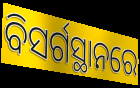
ବିସର୍ଗସ୍ଥାନରେ